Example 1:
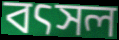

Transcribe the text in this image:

বৎসল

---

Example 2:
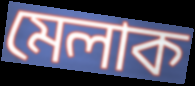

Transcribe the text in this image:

মেলাক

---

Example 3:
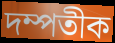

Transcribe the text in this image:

দম্পতীক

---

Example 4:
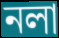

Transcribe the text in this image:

নলা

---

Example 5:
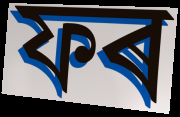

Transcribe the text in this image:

ফৰ